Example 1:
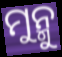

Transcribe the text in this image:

ମୁନ୍ମୁ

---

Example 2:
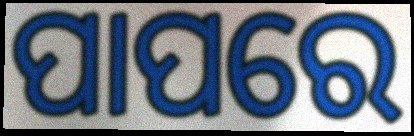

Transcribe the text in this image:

ପାପରେ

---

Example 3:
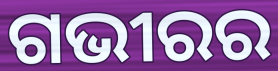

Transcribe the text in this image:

ଗଭୀରର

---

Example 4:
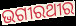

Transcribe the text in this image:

ଭଗୀରଥୀର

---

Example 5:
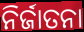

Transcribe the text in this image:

ନିର୍ଜାତନା